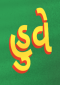
હુવે